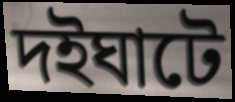
দইঘাটে